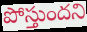
పోస్తుందని